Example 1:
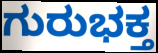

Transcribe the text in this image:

ಗುರುಭಕ್ತ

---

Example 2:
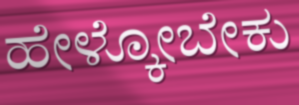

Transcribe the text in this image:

ಹೇಳ್ಕೋಬೇಕು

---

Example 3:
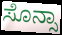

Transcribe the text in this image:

ಸೊನ್ಸಾ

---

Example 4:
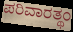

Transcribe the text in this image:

ಪರಿವಾರತ್ಥಂ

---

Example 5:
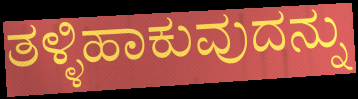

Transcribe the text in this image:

ತಳ್ಳಿಹಾಕುವುದನ್ನು